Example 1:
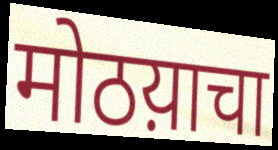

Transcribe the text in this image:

मोठय़ाचा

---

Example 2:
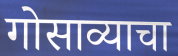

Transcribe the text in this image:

गोसाव्याचा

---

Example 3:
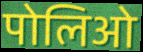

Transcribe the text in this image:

पोलिओ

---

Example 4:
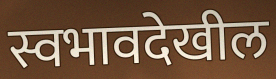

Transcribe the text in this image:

स्वभावदेखील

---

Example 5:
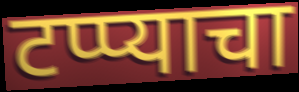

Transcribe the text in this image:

टप्प्याचा